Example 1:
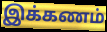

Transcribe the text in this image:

இக்கணம்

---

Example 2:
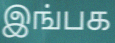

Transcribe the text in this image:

இங்பக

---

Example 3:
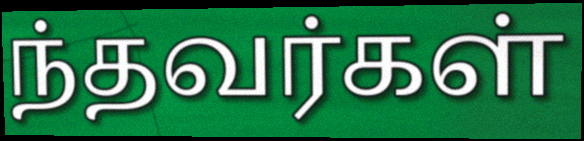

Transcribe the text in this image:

ந்தவர்கள்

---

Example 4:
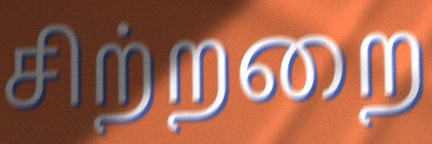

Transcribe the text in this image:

சிற்றறை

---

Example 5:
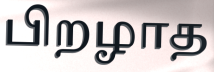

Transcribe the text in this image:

பிறழாத